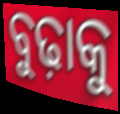
ବୁଢ଼ାକୁ